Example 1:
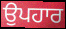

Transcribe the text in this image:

ਉਪਹਾਰ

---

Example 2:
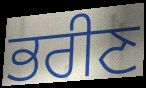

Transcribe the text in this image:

ਭਰੀਣ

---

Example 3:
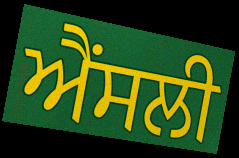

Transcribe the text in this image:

ਐਂਸਲੀ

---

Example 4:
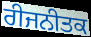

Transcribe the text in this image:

ਰੀਜਨੀਤਕ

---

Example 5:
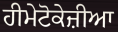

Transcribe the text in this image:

ਹੀਮੇਟੋਕੇਜ਼ੀਆ